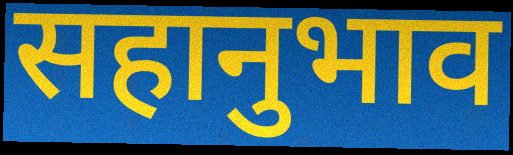
सहानुभाव